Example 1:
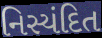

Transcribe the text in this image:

નિસ્યંદિત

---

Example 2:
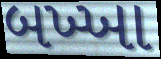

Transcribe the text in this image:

બખ્ખા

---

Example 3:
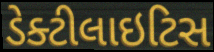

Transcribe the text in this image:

ડેક્ટીલાઇટિસ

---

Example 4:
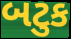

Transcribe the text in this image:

બટુક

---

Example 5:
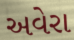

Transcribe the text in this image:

અવેરા